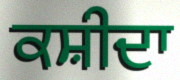
ਕਸ਼ੀਦਾ